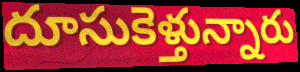
దూసుకెళ్తున్నారు